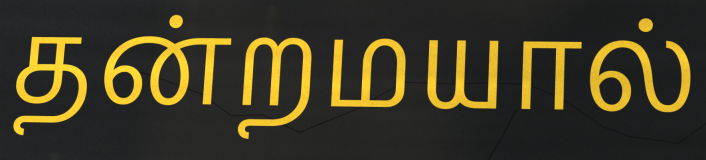
தன்றமயால்